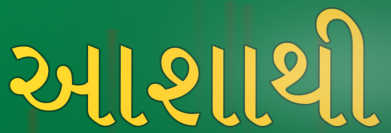
આશાથી